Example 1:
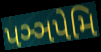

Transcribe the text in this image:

પઞ્ઞપેમિ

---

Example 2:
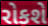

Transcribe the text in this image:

રોકશે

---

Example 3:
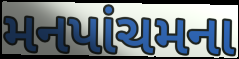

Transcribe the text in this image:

મનપાંચમના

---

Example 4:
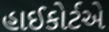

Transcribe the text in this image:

હાઈકોર્ટએ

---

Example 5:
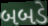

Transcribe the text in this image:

બબડે